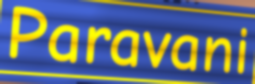
Paravani